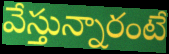
వేస్తున్నారంటే